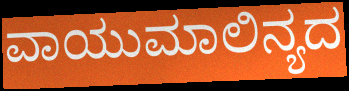
ವಾಯುಮಾಲಿನ್ಯದ